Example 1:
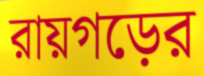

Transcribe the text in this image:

রায়গড়ের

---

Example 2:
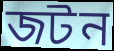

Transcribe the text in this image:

জটন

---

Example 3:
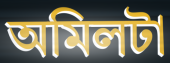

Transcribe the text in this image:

অমিলটা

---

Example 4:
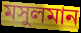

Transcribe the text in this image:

মসুলমান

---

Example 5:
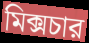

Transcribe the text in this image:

মিক্সচার